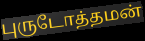
புருடோத்தமன்